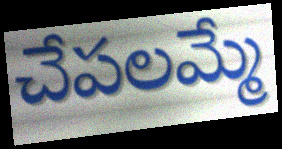
చేపలమ్మే